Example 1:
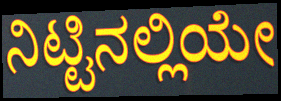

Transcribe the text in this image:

ನಿಟ್ಟಿನಲ್ಲಿಯೇ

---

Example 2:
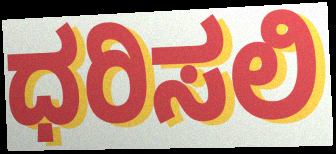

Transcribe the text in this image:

ಧರಿಸಲಿ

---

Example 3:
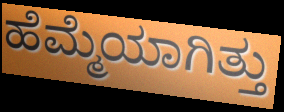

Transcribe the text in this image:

ಹೆಮ್ಮೆಯಾಗಿತ್ತು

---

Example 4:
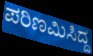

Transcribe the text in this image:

ಪರಿಣಮಿಸಿದ್ದ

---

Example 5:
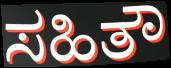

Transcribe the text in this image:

ಸಹಿತೌ